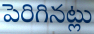
పెరిగినట్లు